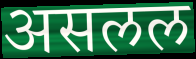
असलल